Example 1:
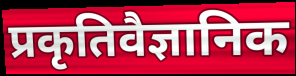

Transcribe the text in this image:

प्रकृतिवैज्ञानिक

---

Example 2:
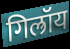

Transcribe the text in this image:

गिल्रॉय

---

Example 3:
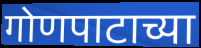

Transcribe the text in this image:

गोणपाटाच्या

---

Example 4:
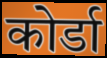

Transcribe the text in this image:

कोर्डा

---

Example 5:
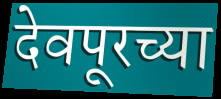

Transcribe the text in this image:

देवपूरच्या